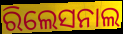
ରିଲେସନାଲ